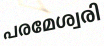
പരമേശ്വരി